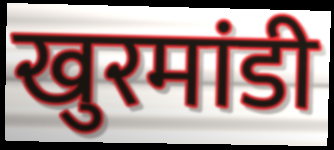
खुरमांडी